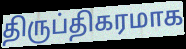
திருப்திகரமாக